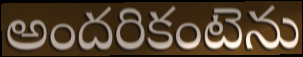
అందరికంటెను